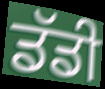
ਡੱਡੀ